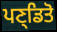
ਪਣ੍ਡਿਤੋ